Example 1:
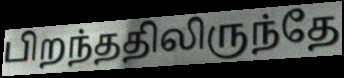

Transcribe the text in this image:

பிறந்ததிலிருந்தே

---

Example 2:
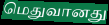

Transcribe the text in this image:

மெதுவானது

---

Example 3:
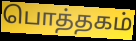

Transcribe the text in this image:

பொத்தகம்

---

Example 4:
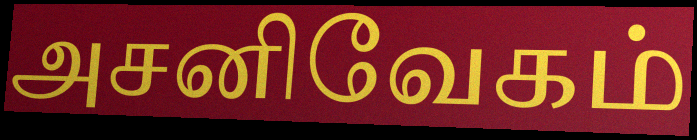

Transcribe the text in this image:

அசனிவேகம்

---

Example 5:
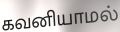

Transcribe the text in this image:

கவனியாமல்